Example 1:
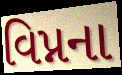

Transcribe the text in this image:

વિપ્નના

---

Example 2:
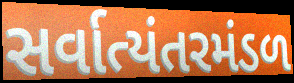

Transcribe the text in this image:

સર્વાત્યંતરમંડળ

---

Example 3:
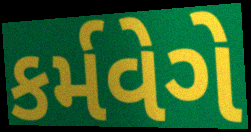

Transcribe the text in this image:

કર્મવેગે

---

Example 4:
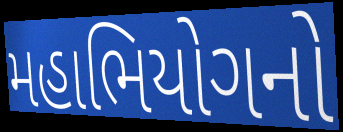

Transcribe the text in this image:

મહાભિયોગનો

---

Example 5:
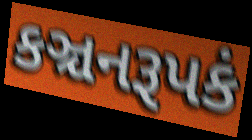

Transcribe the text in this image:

કઞ્ચનરૂપકં